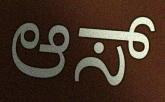
ಆಸ್